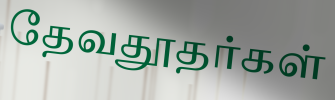
தேவதூதர்கள்